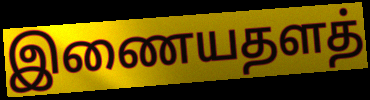
இணையதளத்